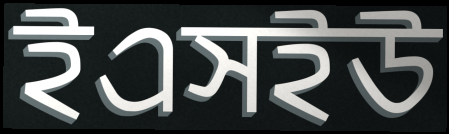
ইএসইউ